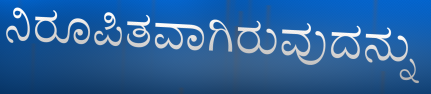
ನಿರೂಪಿತವಾಗಿರುವುದನ್ನು